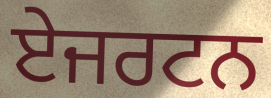
ਏਜਰਟਨ